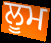
ਲੂਮ